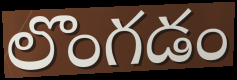
లొంగడం